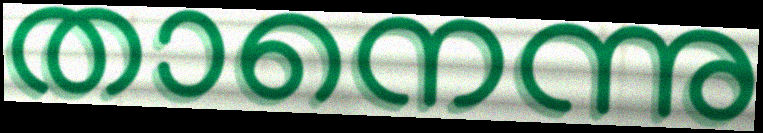
താനെന്നു